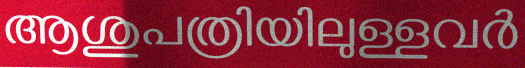
ആശുപത്രിയിലുള്ളവർ